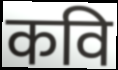
कवि